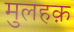
मुलहक़